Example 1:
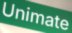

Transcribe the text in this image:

Unimate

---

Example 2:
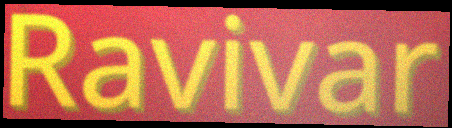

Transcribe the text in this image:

Ravivar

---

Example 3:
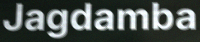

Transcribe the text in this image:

Jagdamba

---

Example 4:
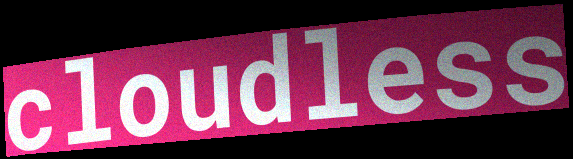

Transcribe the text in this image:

cloudless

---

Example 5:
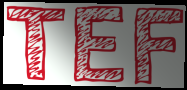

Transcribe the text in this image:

TEF